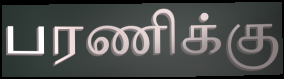
பரணிக்கு